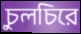
চুলচিরে